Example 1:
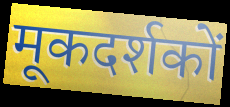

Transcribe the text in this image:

मूकदर्शकों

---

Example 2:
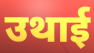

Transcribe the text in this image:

उथाई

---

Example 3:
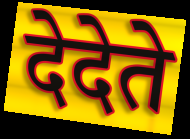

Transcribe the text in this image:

देदेते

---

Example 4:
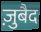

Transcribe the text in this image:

ज़ुबैद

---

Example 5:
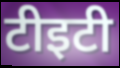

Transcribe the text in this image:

टीइटी